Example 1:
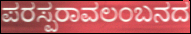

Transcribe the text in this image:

ಪರಸ್ಪರಾವಲಂಬನದ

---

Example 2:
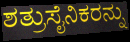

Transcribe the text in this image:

ಶತ್ರುಸೈನಿಕರನ್ನು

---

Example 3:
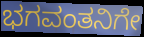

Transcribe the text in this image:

ಭಗವಂತನಿಗೇ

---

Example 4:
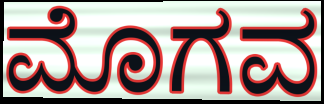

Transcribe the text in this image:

ಮೊಗವ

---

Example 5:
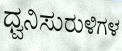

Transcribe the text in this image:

ಧ್ವನಿಸುರುಳಿಗಳ